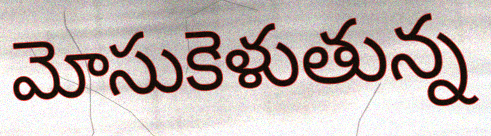
మోసుకెళుతున్న